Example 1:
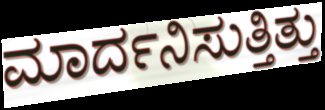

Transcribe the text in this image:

ಮಾರ್ದನಿಸುತ್ತಿತ್ತು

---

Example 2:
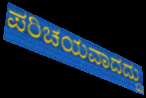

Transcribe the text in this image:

ಪರಿಚಯವಾದದ್ದು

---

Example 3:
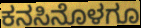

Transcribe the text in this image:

ಕನಸಿನೊಳಗೂ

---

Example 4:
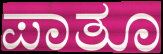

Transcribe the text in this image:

ಪಾತೂ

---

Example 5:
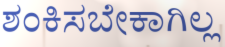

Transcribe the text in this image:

ಶಂಕಿಸಬೇಕಾಗಿಲ್ಲ